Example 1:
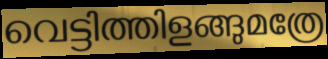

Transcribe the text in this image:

വെട്ടിത്തിളങ്ങുമത്രേ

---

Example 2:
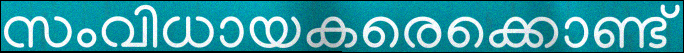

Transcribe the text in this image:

സംവിധായകരെക്കൊണ്ട്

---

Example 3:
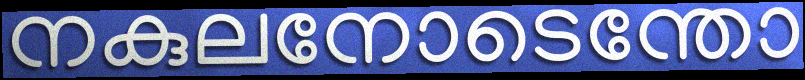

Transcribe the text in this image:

നകുലനോടെന്തോ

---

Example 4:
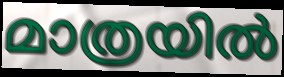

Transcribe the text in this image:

മാത്രയിൽ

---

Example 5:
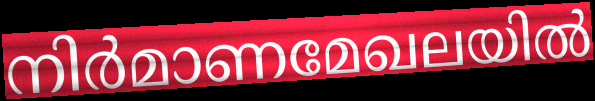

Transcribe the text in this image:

നിർമാണമേഖലയിൽ